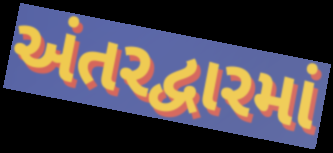
અંતરદ્વારમાં